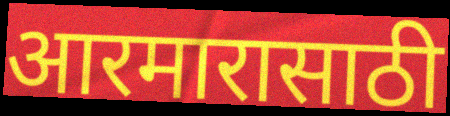
आरमारासाठी